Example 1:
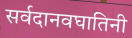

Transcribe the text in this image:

सर्वदानवघातिनी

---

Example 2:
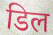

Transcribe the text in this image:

डिल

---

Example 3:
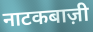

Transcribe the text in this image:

नाटकबाज़ी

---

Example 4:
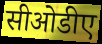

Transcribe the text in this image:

सीओडीए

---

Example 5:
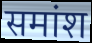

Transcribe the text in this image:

समांश